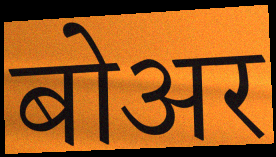
बोअर